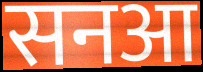
सनआ